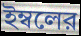
ইম্বলের